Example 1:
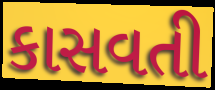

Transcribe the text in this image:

કાસવતી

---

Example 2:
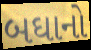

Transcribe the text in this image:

બઘાનો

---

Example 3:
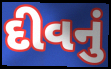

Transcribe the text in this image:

દીવનું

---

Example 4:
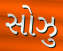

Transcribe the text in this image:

સોઝુ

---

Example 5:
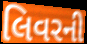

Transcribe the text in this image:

લિવરની